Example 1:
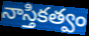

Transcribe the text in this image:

నాస్తికత్వం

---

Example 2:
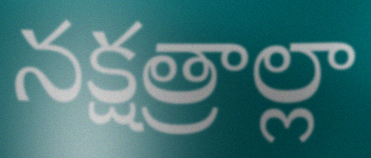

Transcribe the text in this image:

నక్షత్రాల్లా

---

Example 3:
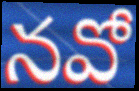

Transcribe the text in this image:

నవో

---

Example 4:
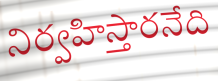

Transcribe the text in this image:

నిర్వహిస్తారనేది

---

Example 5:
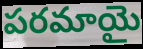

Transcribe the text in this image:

పరమాయై